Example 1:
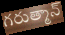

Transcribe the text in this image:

గరుత్మాన్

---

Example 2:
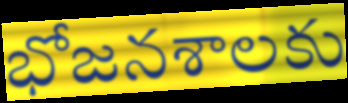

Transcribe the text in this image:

భోజనశాలకు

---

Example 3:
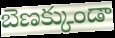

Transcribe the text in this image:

బెణక్కుండా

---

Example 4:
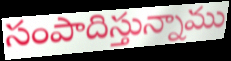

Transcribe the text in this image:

సంపాదిస్తున్నాము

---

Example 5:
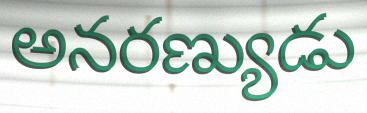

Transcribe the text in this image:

అనరణ్యుడు